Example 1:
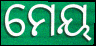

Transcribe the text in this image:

ମେୟ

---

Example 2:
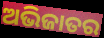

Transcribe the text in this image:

ଅଭିଜାତର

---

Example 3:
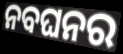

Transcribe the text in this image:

ନବଘନର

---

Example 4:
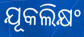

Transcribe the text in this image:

ଯୂକଲିକ୍ଷଂ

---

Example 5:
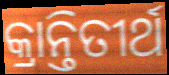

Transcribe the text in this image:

କ୍ରାନ୍ତିତୀର୍ଥ